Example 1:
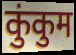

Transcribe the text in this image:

कुंकुम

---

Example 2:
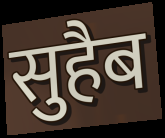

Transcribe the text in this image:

सुहैब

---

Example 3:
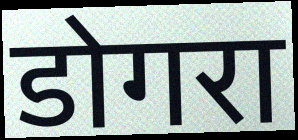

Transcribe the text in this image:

डोगरा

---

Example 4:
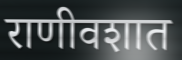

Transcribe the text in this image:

राणीवशात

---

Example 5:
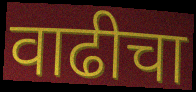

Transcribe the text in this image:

वाढीचा